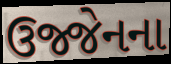
ઉજ્જેનના